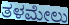
ತಳಮೇಲು